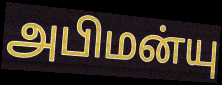
அபிமன்யு